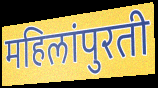
महिलांपुरती